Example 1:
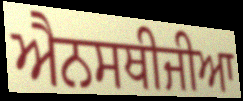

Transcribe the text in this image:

ਐਨਸਥੀਜੀਆ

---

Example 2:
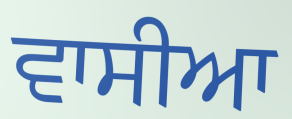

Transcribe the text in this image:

ਵਾਸੀਆ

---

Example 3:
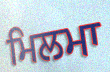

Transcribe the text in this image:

ਮਿਲਮਾ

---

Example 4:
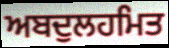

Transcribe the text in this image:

ਅਬਦੁਲਹਮਿਤ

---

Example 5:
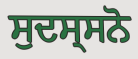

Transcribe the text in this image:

ਸੁਦਸ੍ਸਨੋ